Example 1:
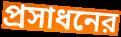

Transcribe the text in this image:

প্রসাধনের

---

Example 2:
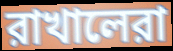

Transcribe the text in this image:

রাখালেরা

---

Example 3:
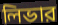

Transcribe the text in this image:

লিভার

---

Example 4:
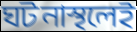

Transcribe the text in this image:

ঘটনাস্থলেই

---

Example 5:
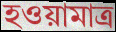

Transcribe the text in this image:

হওয়ামাত্র